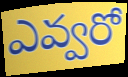
ఎవ్వరో